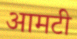
आमटी